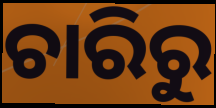
ଚାରିରୁ